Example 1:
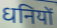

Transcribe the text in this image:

धनियों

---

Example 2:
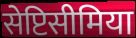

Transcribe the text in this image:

सेप्टिसीमिया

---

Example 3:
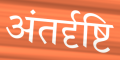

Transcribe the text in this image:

अंतर्दृष्टि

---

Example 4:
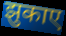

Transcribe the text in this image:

झुकाए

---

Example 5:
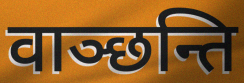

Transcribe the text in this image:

वाञ्छन्ति